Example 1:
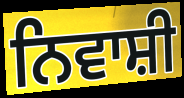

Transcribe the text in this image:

ਨਿਵਾਸ਼ੀ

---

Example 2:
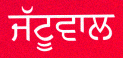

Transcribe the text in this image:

ਜੱਟੂਵਾਲ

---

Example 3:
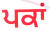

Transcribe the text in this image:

ਪਕਾਂ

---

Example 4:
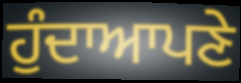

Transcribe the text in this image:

ਹੁੰਦਾਆਪਣੇ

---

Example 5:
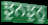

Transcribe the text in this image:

ਝੁਨਝੁਨੂ